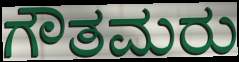
ಗೌತಮರು